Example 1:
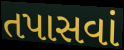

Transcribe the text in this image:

તપાસવાં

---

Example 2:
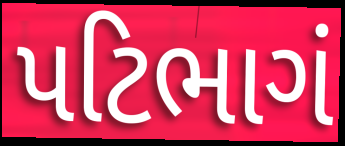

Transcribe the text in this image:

પટિભાગં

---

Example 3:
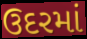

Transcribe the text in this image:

ઉદરમાં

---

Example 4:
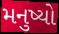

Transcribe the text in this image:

મનુષ્યો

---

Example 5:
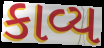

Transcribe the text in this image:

કાવ્ય